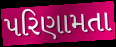
પરિણામતા